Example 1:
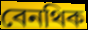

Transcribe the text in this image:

বেনথিক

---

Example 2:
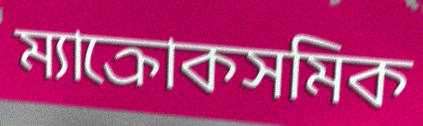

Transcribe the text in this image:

ম্যাক্রোকসমিক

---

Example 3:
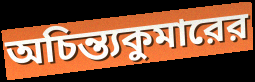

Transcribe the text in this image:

অচিন্ত্যকুমারের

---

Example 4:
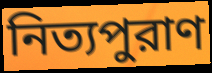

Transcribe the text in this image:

নিত্যপুরাণ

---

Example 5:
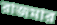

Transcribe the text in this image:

রাজমার